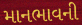
માનભાવની